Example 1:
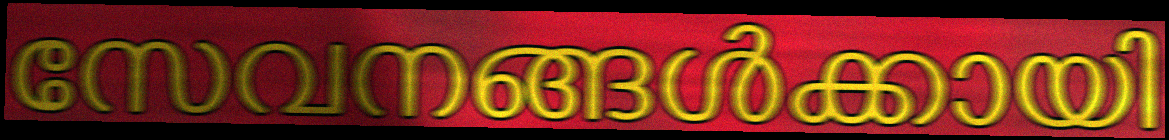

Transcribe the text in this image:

സേവനങ്ങൾക്കായി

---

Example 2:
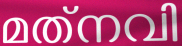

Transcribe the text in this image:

മത്‌നവി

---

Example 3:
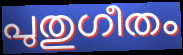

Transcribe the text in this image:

പുതുഗീതം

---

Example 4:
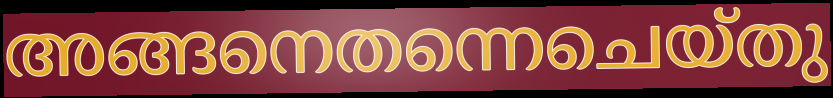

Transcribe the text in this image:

അങ്ങനെതന്നെചെയ്തു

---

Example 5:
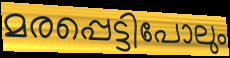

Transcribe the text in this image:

മരപ്പെട്ടിപോലും